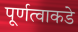
पूर्णत्वाकडे